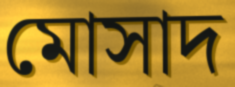
মোসাদ